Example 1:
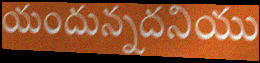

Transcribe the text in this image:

యందున్నదనియు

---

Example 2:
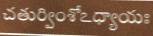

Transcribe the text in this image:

చతుర్వింశోఽధ్యాయః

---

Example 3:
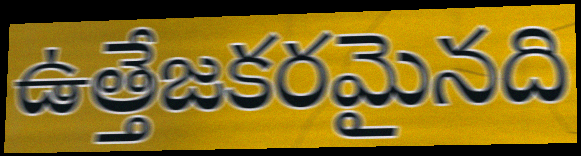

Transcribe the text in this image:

ఉత్తేజకరమైనది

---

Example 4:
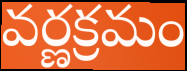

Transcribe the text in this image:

వర్ణక్రమం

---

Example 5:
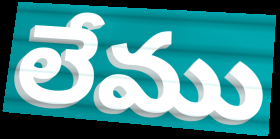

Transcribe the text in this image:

లేము